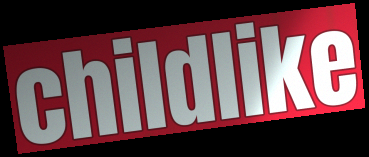
childlike